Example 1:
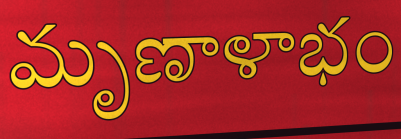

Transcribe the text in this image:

మృణాళాభం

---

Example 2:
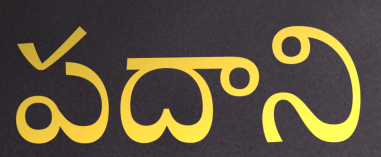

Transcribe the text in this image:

పదాని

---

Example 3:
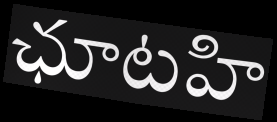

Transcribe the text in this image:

ఛూటహి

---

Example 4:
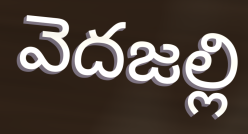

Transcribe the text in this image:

వెదజల్లి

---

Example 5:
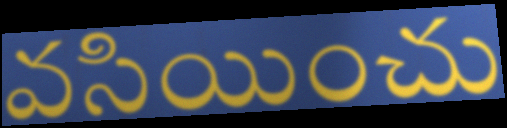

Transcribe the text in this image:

వసియించు